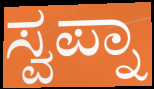
ಸ್ವಪ್ನಾ